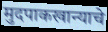
मुदपाकखान्याचे